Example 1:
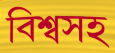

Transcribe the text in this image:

বিশ্বসহ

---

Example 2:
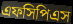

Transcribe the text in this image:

এফসিপিএস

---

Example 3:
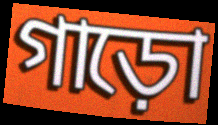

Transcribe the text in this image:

গাড়ো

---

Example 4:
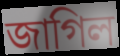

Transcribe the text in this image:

জাগিল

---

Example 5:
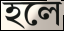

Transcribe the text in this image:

হলে